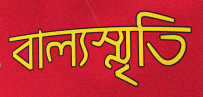
বাল্যস্মৃতি